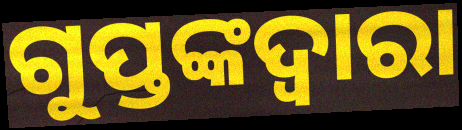
ଗୁପ୍ତଙ୍କଦ୍ୱାରା